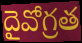
దైవోగ్రత